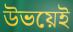
উভয়েই